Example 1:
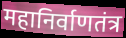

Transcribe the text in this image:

महानिर्वाणतंत्र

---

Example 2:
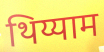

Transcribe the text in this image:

थिय्याम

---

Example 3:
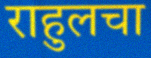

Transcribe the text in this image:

राहुलचा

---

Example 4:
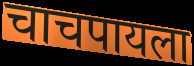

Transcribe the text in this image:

चाचपायला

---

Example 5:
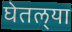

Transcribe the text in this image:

घेतल्या